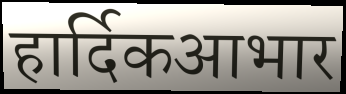
हार्दिकआभार